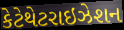
કેટેથેટરાઇઝેશન